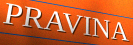
PRAVINA